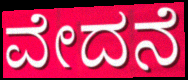
ವೇದನೆ